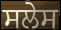
ਸਲੇਸ